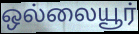
ஒல்லையூர்